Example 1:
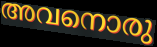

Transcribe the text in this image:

അവനൊരു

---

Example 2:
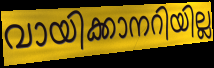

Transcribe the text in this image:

വായിക്കാനറിയില്ല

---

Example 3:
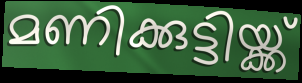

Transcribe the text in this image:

മണിക്കുട്ടിയ്ക്ക്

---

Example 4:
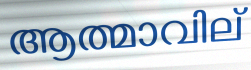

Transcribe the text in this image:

ആത്മാവില്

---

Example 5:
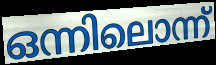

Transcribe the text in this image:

ഒന്നിലൊന്ന്